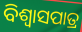
ବିଶ୍ୱାସପାତ୍ର